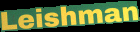
Leishman